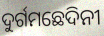
ଦୁର୍ଗମଛେଦିନୀ